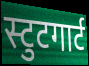
स्टुटगार्ट